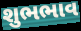
શુભભાવ